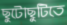
ছুটোছুটিতে